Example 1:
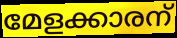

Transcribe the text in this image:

മേളക്കാരന്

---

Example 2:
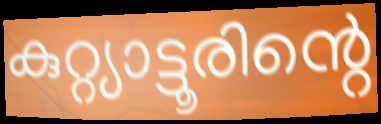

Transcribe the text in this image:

കുറ്റ്യാട്ടൂരിന്റെ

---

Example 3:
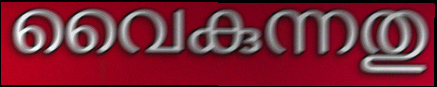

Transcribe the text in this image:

വൈകുന്നതു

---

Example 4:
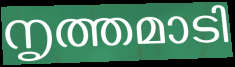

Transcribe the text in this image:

നൃത്തമാടി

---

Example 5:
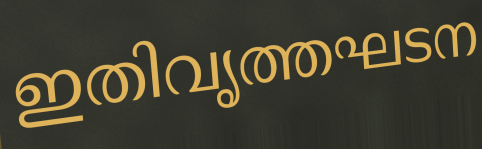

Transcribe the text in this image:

ഇതിവൃത്തഘടന